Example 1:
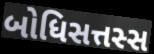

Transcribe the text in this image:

બોધિસત્તસ્સ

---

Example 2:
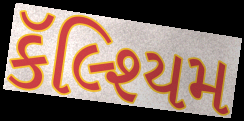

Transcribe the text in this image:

કૅલ્શ્યિમ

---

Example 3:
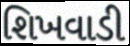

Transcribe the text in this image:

શિખવાડી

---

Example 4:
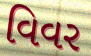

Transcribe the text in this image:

વિવર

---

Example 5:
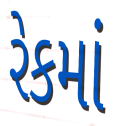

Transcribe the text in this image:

રેકમાં